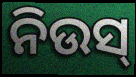
ନିଉସ୍